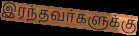
இரந்தவர்களுக்கு